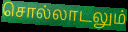
சொல்லாடலும்